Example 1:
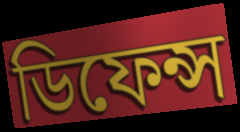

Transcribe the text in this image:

ডিফেন্স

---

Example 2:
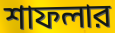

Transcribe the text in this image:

শাফলার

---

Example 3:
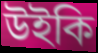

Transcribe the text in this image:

উইকি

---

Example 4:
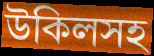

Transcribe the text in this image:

উকিলসহ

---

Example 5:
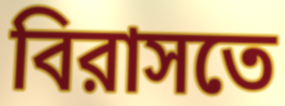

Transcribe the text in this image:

বিরাসতে